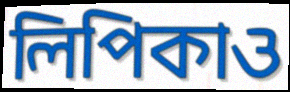
লিপিকাও